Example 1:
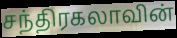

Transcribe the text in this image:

சந்திரகலாவின்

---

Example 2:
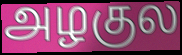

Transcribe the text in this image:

அழகுல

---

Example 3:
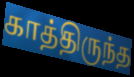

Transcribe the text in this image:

காத்திருந்த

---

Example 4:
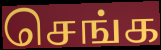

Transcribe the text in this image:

செங்க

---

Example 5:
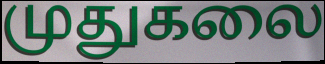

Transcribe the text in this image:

முதுகலை